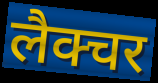
लैक्चर